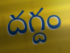
దగ్దం